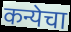
कन्येचा